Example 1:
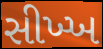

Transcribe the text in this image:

સીખ્ખ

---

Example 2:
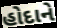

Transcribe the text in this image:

હોદાને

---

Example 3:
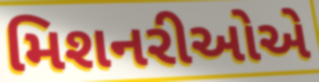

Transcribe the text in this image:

મિશનરીઓએ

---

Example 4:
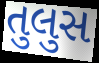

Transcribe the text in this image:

તુલુસ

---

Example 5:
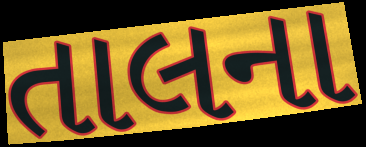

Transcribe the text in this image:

તાલના